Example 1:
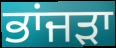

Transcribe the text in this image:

ਭਾਂਜੜਾ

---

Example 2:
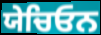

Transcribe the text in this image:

ਯੇਚਿਓਨ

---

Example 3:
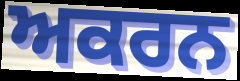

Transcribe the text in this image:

ਅਕਰਨ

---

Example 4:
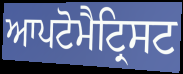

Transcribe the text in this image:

ਆਪਟੋਮੈਟ੍ਰਿਸਟ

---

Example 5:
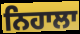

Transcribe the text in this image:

ਨਿਹਾਲਾ